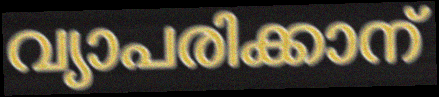
വ്യാപരിക്കാന്